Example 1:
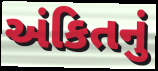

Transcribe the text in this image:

અંકિતનું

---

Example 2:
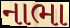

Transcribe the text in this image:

નાભા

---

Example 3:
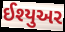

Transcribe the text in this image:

ઈશ્યુઅર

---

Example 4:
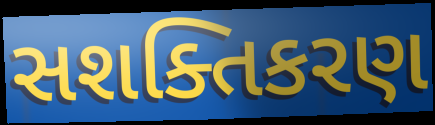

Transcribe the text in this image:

સશક્તિકરણ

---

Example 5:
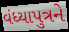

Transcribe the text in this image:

વંધ્યાપુત્રને